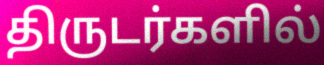
திருடர்களில்